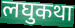
लघुकथा